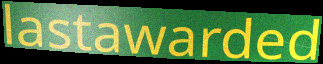
lastawarded